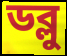
ডব্লু